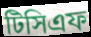
টিসিএফ